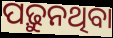
ପଢ଼ୁନଥିବା